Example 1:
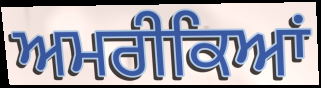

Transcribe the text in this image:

ਅਮਰੀਕਿਆਂ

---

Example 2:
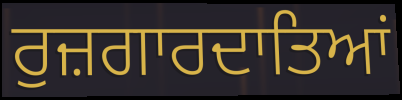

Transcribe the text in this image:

ਰੁਜ਼ਗਾਰਦਾਤਿਆਂ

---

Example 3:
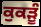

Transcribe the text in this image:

ਕੁਕੜੂੰ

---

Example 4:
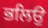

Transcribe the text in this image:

ਭਲਿਉ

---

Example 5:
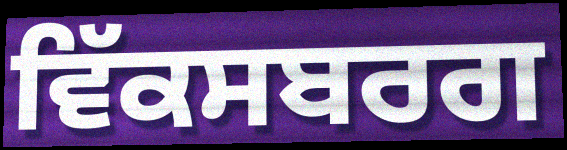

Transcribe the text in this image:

ਵਿੱਕਸਬਰਗ